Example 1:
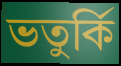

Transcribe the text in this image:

ভতুর্কি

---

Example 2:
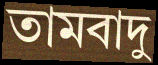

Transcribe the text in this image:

তামবাদু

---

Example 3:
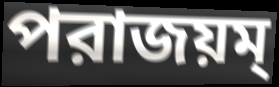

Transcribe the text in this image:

পরাজয়ম্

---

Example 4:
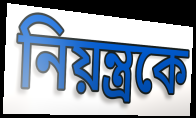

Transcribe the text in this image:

নিয়ন্ত্রকে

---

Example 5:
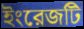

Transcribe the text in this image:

ইংরেজটি